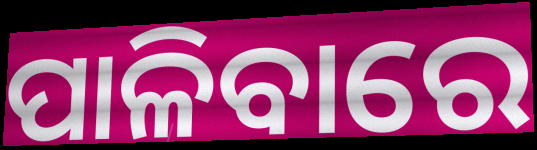
ପାଳିବାରେ